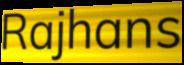
Rajhans